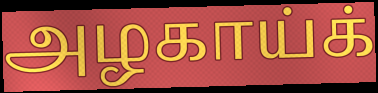
அழகாய்க்